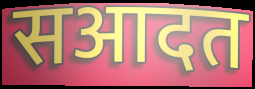
सआदत